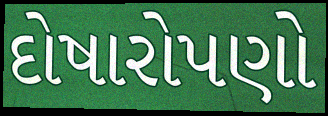
દોષારોપણો